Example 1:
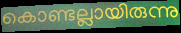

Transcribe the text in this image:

കൊണ്ടല്ലായിരുന്നു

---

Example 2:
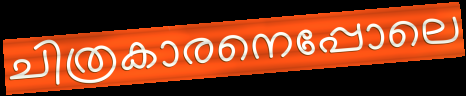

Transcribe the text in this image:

ചിത്രകാരനെപ്പോലെ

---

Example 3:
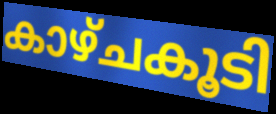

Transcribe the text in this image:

കാഴ്ചകൂടി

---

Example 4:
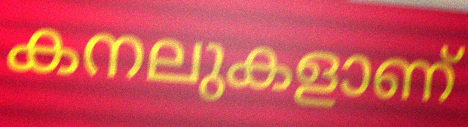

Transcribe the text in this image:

കനലുകളാണ്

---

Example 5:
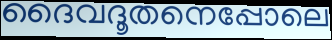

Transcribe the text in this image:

ദൈവദൂതനെപ്പോലെ